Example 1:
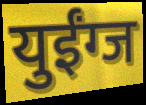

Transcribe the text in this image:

युईंग्ज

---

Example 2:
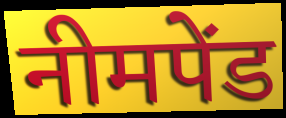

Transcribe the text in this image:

नीमपेंड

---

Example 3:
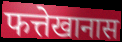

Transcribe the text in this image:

फत्तेखानास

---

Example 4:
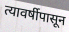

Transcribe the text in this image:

त्यावर्षीपासून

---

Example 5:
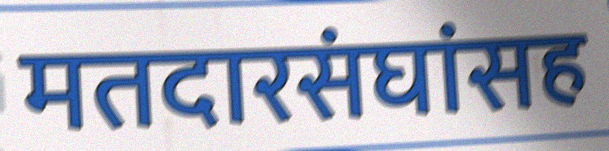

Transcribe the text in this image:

मतदारसंघांसह